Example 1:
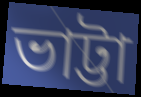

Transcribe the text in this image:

ভাট্টা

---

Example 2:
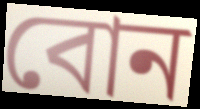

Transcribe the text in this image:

বোন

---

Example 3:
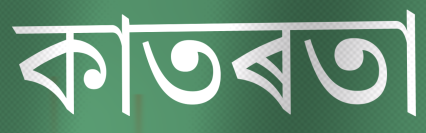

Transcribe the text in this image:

কাতৰতা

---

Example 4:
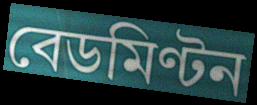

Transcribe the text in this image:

বেডমিণ্টন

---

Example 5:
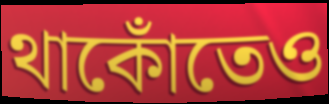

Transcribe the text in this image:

থাকোঁতেও